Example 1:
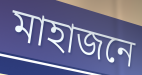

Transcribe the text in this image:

মাহাজনে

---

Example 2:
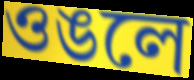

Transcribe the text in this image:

ওঙলে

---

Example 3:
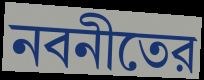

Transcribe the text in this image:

নবনীতের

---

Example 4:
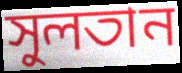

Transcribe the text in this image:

সুলতান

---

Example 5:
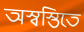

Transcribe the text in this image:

অস্বস্তিতে